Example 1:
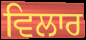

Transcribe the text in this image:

ਵਿਲਾਰ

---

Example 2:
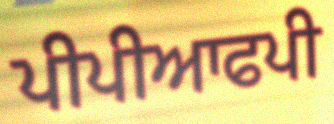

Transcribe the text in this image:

ਪੀਪੀਆਫਪੀ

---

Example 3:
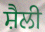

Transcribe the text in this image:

ਸ਼ੈਲੀ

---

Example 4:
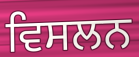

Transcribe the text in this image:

ਵਿਸਲਨ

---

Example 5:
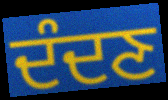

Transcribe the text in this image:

ਦੰਦਣ